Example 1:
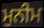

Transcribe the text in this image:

ਮੁਨੀਮ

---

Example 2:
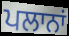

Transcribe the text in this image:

ਪਲਾਨਾਂ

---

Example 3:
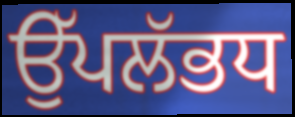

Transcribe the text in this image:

ਉੱਪਲੱਭਧ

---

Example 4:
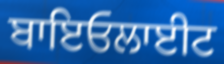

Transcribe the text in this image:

ਬਾਇਓਲਾਈਟ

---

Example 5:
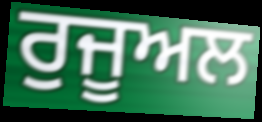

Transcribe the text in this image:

ਰੁਜੂਅਲ